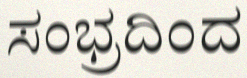
ಸಂಭ್ರದಿಂದ